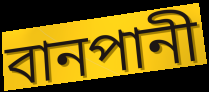
বানপানী